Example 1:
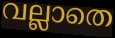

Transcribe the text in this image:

വല്ലാതെ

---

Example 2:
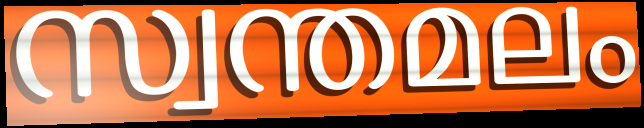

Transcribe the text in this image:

സ്വന്തമലം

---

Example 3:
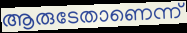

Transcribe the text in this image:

ആരുടേതാണെന്ന്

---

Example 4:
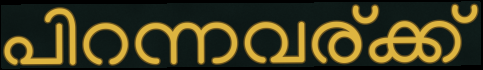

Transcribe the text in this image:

പിറന്നവര്ക്ക്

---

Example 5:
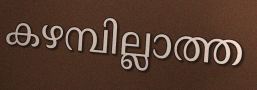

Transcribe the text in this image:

കഴമ്പില്ലാത്ത